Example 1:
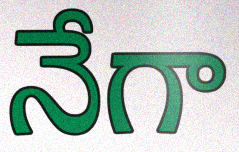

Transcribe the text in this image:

నేగా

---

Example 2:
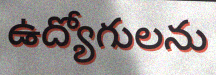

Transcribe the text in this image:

ఉద్యోగులను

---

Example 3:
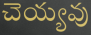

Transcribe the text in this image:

చెయ్యవు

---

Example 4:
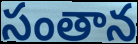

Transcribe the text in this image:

సంతాన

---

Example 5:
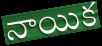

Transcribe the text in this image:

నాయిక